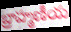
బ్రాహ్మణీయ